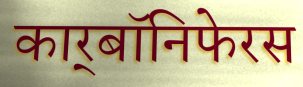
कार्बॉनिफेरस